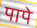
पापे